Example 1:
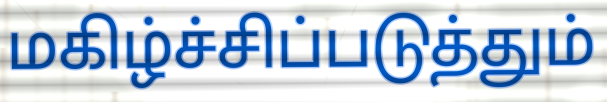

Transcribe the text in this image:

மகிழ்ச்சிப்படுத்தும்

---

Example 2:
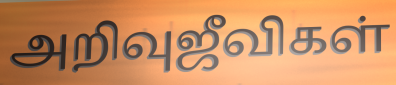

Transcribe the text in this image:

அறிவுஜீவிகள்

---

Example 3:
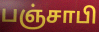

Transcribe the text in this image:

பஞ்சாபி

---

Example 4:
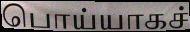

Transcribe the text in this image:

பொய்யாகச்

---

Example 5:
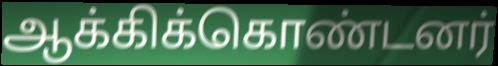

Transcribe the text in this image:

ஆக்கிக்கொண்டனர்